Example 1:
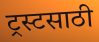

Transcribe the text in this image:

ट्रस्टसाठी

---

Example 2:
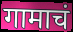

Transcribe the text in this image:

गामाचं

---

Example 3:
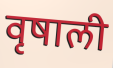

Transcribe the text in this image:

वृषाली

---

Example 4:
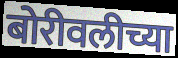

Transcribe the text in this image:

बोरीवलीच्या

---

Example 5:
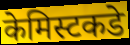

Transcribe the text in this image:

केमिस्टकडे